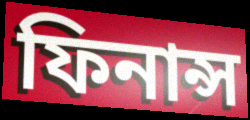
ফিনান্স